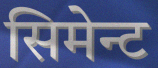
सिमेन्ट